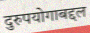
दुरुपयोगाबद्दल